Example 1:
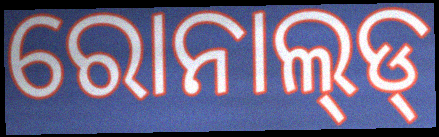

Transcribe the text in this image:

ରୋନାଲ୍‌ଡ୍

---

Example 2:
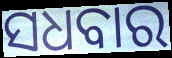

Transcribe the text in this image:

ସଧବାର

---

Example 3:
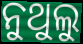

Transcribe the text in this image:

ନୁଥୁଲୁ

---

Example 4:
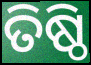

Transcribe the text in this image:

ତିଷ୍ଠି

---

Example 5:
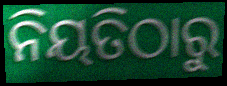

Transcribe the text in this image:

ନିୟତିଠାରୁ